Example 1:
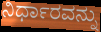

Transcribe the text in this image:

ನಿರ್ಧಾರವನ್ನು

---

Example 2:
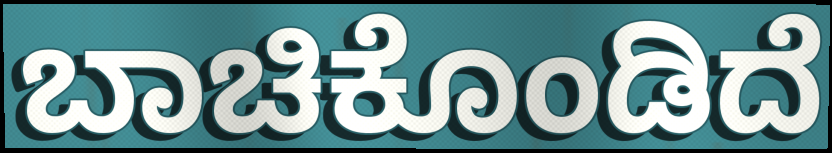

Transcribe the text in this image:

ಬಾಚಿಕೊಂಡಿದೆ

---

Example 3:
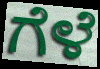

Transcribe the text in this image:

ಗೆಳೆ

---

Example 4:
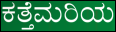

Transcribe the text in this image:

ಕತ್ತೆಮರಿಯ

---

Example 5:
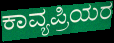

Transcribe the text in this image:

ಕಾವ್ಯಪ್ರಿಯರ